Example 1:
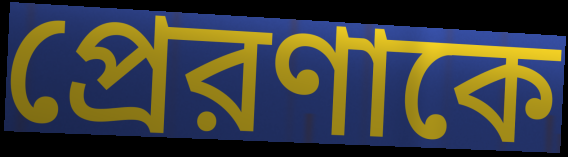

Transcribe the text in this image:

প্রেরণাকে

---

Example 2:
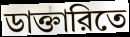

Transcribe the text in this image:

ডাক্তারিতে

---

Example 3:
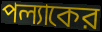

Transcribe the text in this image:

পল্যাকের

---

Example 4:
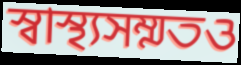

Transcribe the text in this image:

স্বাস্থ্যসম্মতও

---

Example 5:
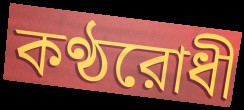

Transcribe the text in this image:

কণ্ঠরোধী